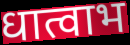
धात्वाभ